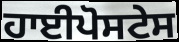
ਹਾਈਪੋਸਟੇਸ